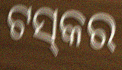
ଟସ୍‍କର